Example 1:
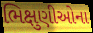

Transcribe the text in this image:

ભિક્ષુણીઓના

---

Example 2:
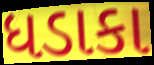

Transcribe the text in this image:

ધડાકા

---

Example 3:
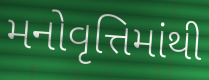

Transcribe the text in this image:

મનોવૃત્તિમાંથી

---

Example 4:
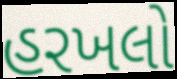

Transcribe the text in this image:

હરખલો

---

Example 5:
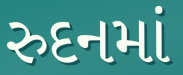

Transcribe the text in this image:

રુદનમાં